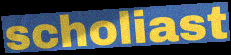
scholiast